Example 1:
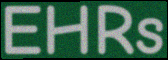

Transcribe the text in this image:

EHRs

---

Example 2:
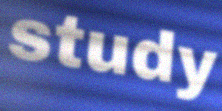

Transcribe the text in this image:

study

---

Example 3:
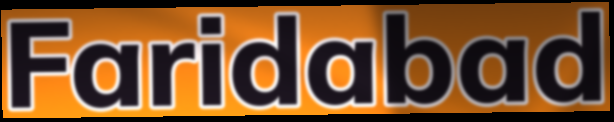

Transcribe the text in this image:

Faridabad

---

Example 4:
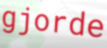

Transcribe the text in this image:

gjorde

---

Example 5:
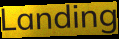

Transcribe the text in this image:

Landing